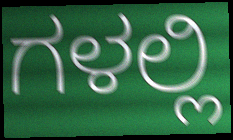
ಗಳಲ್ಲಿ